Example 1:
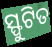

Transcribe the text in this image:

ସ୍ଫୁଟିତ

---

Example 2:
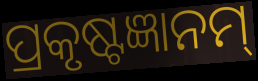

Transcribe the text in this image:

ପ୍ରକୃଷ୍ଟଜ୍ଞାନମ୍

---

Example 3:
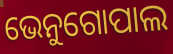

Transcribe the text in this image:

ଭେନୁଗୋପାଲ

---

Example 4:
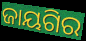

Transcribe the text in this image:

ଜାୟଗିର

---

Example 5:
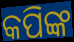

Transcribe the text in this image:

କପିଙ୍କ